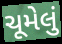
ચૂમેલું